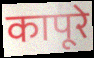
कापूरे